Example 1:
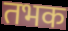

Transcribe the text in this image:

तभक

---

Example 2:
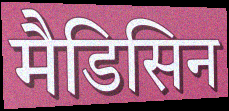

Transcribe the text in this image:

मैडिसिन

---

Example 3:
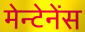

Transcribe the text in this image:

मेन्टेनेंस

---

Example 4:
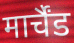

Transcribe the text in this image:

मार्चैंड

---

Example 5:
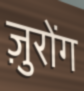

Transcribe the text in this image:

ज़ुरोंग